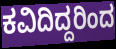
ಕವಿದಿದ್ದರಿಂದ